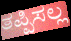
ತಪ್ಪಿಸಲ್ಲ